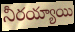
నీరయ్యాయి